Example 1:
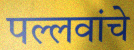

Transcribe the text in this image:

पल्लवांचे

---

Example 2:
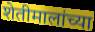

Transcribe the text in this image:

शेतीमालांच्या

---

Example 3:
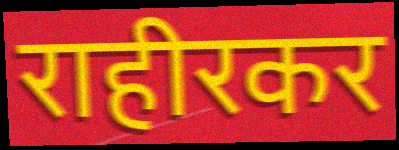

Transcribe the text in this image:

राहीरकर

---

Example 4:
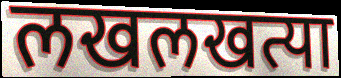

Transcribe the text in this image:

लखलखत्या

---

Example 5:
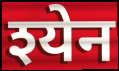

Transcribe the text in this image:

श्येन